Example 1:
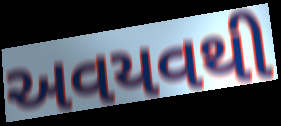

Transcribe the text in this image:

અવયવથી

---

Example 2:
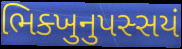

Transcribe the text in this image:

ભિક્ખુનુપસ્સયં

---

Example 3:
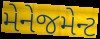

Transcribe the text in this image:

મેનેજમેન્ટ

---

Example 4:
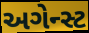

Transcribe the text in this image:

અગેન્સ્ટ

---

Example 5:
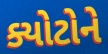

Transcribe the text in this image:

ક્યોટોને